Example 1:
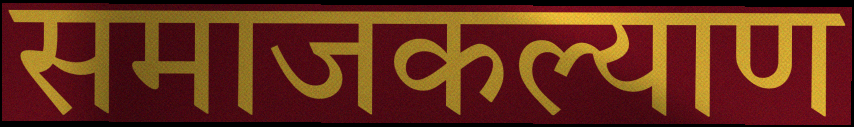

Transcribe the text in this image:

समाजकल्याण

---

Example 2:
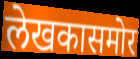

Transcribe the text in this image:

लेखकासमोर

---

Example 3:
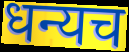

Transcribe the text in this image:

धन्यच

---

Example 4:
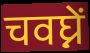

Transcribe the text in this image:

चवघ्नें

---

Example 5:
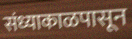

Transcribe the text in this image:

संध्याकाळपासून